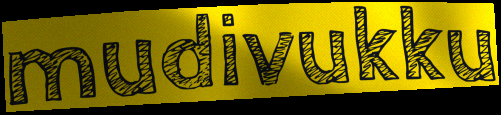
mudivukku